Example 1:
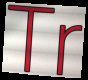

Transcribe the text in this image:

Tr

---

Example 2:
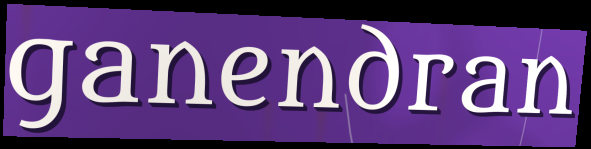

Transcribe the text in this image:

ganendran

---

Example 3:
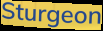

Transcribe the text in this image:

Sturgeon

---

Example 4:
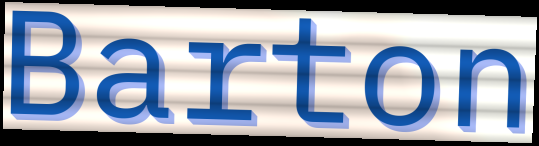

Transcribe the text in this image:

Barton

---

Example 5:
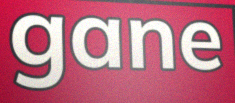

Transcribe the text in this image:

gane